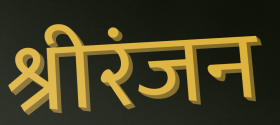
श्रीरंजन